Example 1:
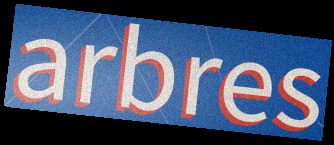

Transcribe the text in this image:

arbres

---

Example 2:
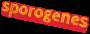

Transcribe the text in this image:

sporogenes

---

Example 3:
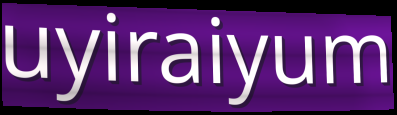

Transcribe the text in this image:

uyiraiyum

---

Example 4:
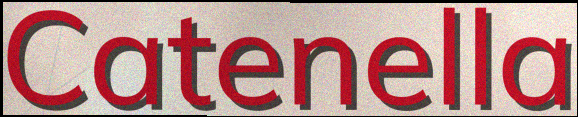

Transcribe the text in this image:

Catenella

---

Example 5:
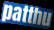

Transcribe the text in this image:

patthu